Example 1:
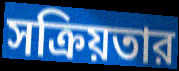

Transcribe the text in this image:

সক্রিয়তার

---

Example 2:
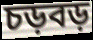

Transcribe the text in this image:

চড়বড়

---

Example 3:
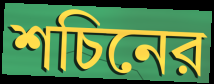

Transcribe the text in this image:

শচিনের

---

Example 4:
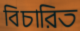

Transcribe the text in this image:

বিচারিত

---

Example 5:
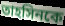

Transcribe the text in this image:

তাহসিনকে